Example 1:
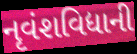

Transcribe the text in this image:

નૃવંશવિદ્યાની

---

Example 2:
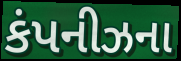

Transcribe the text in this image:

કંપનીઝના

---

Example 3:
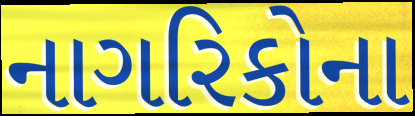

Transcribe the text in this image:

નાગરિકોના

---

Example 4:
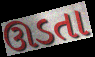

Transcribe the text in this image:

ઊડતા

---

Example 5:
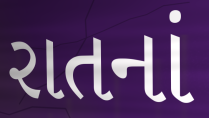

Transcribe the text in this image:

રાતનાં